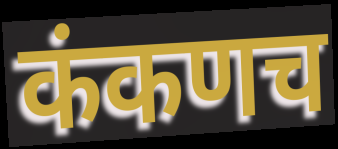
कंकणच